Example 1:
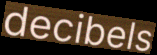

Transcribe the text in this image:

decibels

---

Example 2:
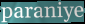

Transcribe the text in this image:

paraniye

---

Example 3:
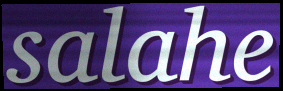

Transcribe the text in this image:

salahe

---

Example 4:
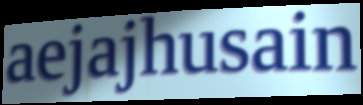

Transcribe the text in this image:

aejajhusain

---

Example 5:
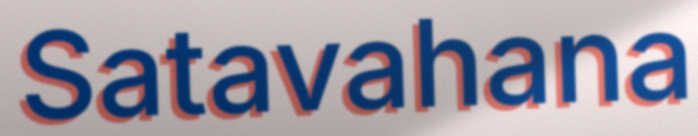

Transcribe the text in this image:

Satavahana